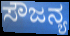
ಸೌಜನ್ಯ